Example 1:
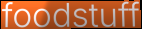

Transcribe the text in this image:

foodstuff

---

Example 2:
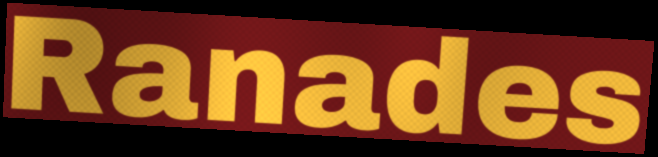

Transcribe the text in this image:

Ranades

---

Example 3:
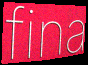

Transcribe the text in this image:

fina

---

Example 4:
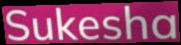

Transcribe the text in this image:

Sukesha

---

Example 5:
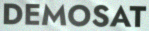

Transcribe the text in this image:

DEMOSAT